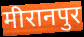
मीरानपुर